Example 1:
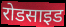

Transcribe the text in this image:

रोडसाइड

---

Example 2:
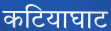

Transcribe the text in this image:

कटियाघाट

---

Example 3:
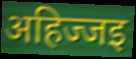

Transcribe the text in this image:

अहिज्जइ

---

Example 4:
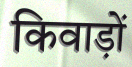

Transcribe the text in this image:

किवाड़ों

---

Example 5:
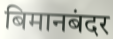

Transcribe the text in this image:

बिमानबंदर